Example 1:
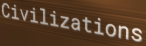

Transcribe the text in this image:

Civilizations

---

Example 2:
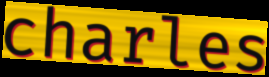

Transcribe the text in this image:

charles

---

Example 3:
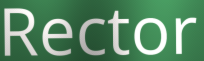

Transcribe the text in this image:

Rector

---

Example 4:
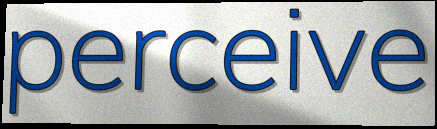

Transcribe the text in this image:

perceive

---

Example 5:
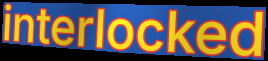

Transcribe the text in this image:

interlocked